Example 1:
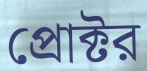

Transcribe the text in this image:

প্রোক্টর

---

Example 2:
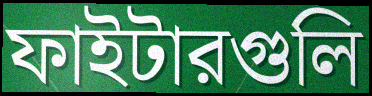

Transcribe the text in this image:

ফাইটারগুলি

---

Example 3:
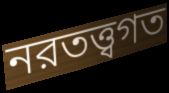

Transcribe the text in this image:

নরতত্ত্বগত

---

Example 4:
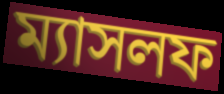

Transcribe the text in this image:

ম্যাসলফ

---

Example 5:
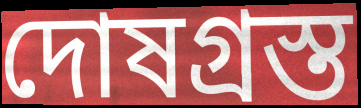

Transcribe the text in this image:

দোষগ্রস্ত